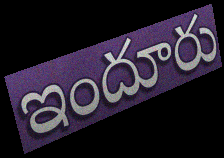
ఇందూరు